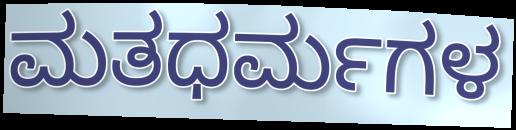
ಮತಧರ್ಮಗಳ